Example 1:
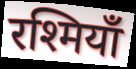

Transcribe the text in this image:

रश्मियाँ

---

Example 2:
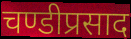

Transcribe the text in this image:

चण्डीप्रसाद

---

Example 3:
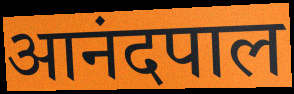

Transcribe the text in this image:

आनंदपाल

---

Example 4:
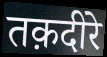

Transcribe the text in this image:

तक़दीरे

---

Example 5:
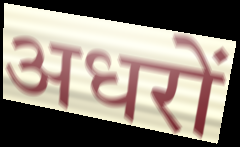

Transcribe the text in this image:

अधरों